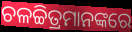
ଚଳଚ୍ଚିତ୍ରମାନଙ୍କରେ